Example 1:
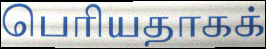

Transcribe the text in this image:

பெரியதாகக்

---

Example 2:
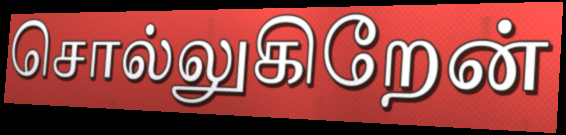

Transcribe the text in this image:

சொல்லுகிறேன்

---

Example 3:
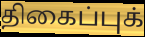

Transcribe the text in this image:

திகைப்புக்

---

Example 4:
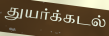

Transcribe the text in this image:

துயர்க்கடல்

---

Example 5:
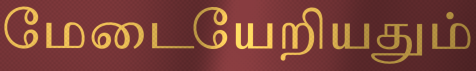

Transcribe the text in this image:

மேடையேறியதும்